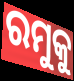
ରମୁକୁ